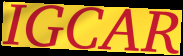
IGCAR